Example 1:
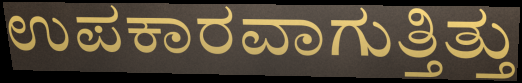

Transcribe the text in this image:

ಉಪಕಾರವಾಗುತ್ತಿತ್ತು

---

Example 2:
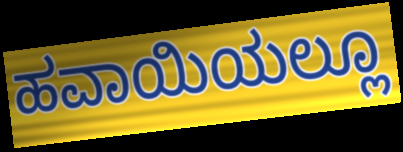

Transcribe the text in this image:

ಹವಾಯಿಯಲ್ಲೂ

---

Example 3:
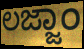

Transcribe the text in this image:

ಲಜ್ಜಾಂ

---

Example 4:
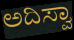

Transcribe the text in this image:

ಅದಿಸ್ವಾ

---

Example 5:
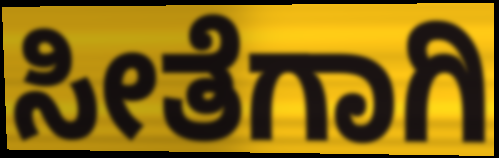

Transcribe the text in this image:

ಸೀತೆಗಾಗಿ